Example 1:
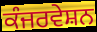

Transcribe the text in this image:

ਕੰਜਰਵੇਸ਼ਨ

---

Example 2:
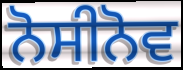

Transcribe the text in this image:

ਨੋਸੀਨੋਵ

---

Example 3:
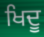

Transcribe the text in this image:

ਖਿਦੂ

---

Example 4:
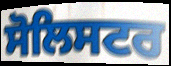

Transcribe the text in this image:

ਸੋਲਿਸਟਰ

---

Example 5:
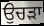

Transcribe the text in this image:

ਉਚੜਾ